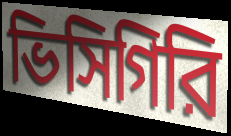
ভিসিগিরি